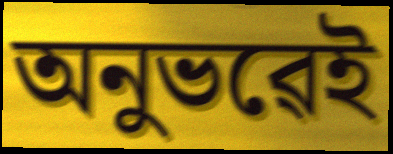
অনুভৱেই